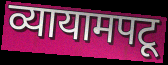
व्यायामपटू